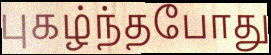
புகழ்ந்தபோது